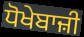
ਧੋਖੇਬਾਜ਼ੀ